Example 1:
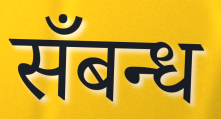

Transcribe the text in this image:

सँबन्ध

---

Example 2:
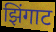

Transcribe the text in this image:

झिंगाट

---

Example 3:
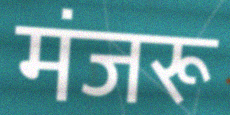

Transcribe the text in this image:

मंजरू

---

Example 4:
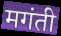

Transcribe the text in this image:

मगंती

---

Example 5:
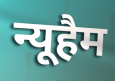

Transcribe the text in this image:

न्यूहैम